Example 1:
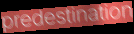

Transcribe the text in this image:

predestination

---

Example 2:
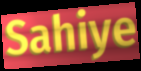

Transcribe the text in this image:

Sahiye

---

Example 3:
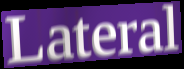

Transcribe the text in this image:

Lateral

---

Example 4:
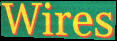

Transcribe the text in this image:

Wires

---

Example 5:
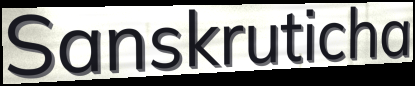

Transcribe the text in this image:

Sanskruticha